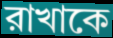
রাখাকে